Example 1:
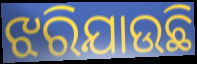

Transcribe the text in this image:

ଝରିଯାଉଛି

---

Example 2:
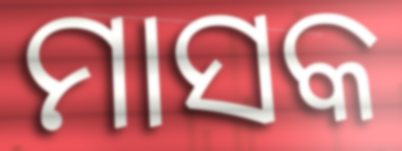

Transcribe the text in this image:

ମାସକ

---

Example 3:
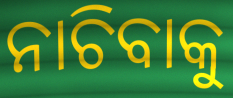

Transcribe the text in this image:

ନାଚିବାକୁ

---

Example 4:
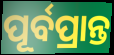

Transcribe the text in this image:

ପୂର୍ବପ୍ରାନ୍ତ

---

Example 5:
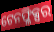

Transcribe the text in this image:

ଟେନଫ୍ଳିକ୍ସର